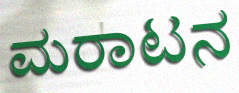
ಮರಾಟನ